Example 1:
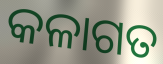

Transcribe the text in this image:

କଳାଗତ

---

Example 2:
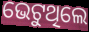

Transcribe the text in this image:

ଭେଟୁଥିଲେ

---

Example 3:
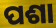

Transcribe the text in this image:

ପଶା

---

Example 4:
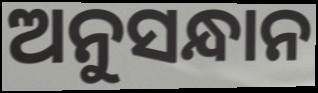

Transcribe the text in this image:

ଅନୁସନ୍ଧାନ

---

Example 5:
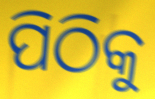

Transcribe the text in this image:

ପିଠିକୁ